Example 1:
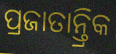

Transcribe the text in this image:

ପ୍ରଜାତାନ୍ତ୍ରିକ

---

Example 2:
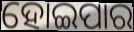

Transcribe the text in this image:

ହୋଇପାର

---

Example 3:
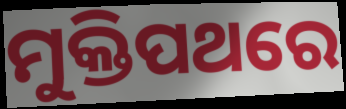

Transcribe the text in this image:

ମୁକ୍ତିପଥରେ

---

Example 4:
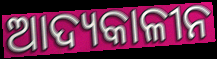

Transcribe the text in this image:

ଆଦ୍ୟକାଳୀନ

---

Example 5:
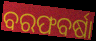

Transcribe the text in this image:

ବରଫବର୍ଷା